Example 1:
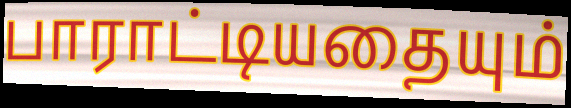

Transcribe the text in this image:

பாராட்டியதையும்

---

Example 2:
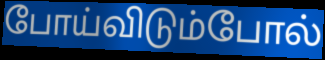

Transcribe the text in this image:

போய்விடும்போல்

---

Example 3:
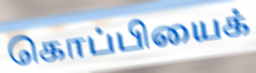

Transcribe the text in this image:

கொப்பியைக்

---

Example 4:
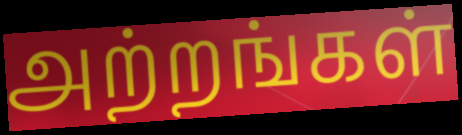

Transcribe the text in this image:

அற்றங்கள்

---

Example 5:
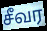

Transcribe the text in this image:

சீவர